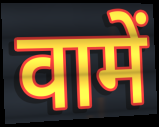
वामें